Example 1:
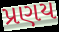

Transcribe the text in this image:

પ્રણય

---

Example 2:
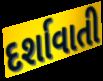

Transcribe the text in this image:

દર્શાવાતી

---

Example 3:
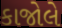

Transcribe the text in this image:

કાજોલે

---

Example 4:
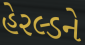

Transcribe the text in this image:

હેરલ્ડને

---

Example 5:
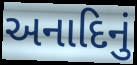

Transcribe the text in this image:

અનાદિનું